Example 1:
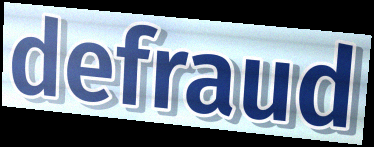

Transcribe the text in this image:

defraud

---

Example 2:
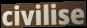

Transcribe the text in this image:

civilise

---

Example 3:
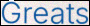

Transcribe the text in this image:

Greats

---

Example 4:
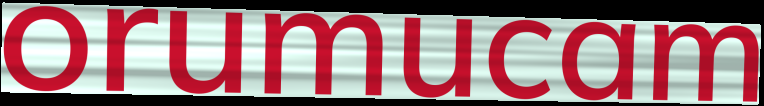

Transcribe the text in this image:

orumucam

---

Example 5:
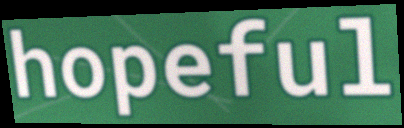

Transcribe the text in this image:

hopeful